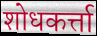
शोधकर्त्ता